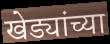
खेड्यांच्या